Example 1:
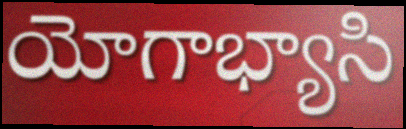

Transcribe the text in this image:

యోగాభ్యాసి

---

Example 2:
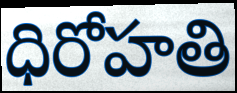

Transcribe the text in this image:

ధిరోహతి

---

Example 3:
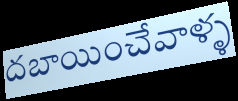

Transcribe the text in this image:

దబాయించేవాళ్ళ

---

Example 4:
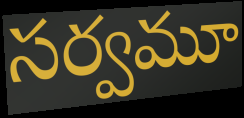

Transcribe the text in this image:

సర్వమూ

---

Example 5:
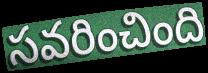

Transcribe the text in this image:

సవరించింది